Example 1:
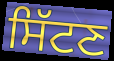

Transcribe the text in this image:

ਸਿੱਟਣ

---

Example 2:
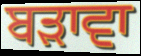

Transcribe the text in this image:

ਬੜਾਵਾ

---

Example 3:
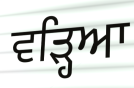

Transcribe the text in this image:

ਵੜ੍ਹਿਆ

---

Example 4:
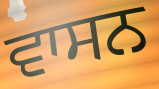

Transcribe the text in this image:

ਵਾਸਨ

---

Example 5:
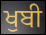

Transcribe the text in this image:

ਖੁਬੀ